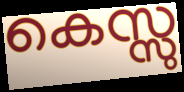
കെസ്സു